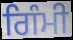
ਗਿੰਮੀ